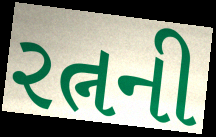
રત્નની